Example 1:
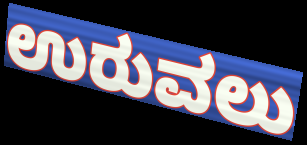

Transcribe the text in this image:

ಉರುವಲು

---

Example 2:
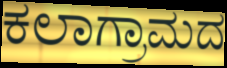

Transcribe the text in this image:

ಕಲಾಗ್ರಾಮದ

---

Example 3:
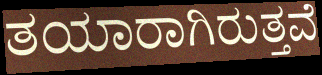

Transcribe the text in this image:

ತಯಾರಾಗಿರುತ್ತವೆ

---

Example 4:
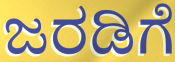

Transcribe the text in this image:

ಜರಡಿಗೆ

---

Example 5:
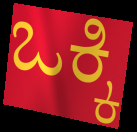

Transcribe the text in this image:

ಒಕ್ಕಿ